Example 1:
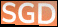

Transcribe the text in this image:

SGD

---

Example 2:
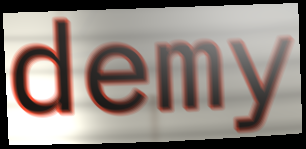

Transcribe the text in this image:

demy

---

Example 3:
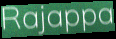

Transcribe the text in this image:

Rajappa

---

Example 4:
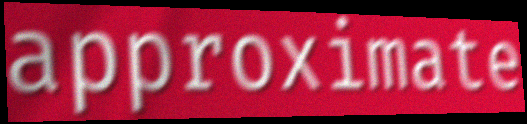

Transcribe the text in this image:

approximate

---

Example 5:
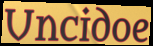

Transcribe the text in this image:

Uncidoe